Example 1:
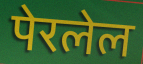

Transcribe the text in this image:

पेरलेल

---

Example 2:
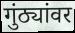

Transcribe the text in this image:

गुंठ्यांवर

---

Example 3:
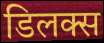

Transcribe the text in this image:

डिलक्स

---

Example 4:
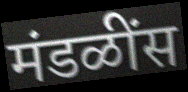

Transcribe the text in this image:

मंडळींस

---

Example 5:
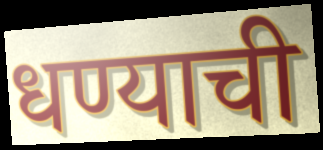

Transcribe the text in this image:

धण्याची